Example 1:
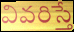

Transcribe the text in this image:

వివరిస్తే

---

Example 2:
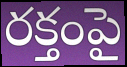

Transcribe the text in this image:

రక్తంపై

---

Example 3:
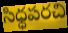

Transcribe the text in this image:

సిధ్ధపరచి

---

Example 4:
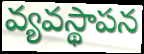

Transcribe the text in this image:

వ్యవస్థాపన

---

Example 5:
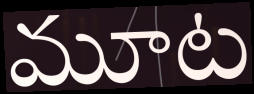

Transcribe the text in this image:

మూట